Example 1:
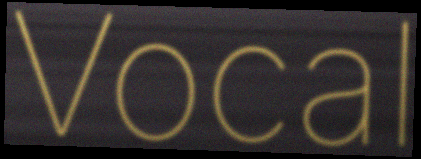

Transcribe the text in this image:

Vocal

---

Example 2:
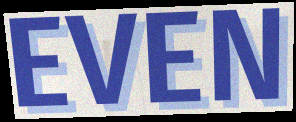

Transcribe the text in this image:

EVEN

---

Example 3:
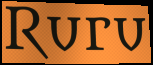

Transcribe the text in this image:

Ruru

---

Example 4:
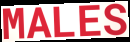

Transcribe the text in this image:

MALES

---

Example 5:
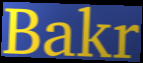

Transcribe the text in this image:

Bakr